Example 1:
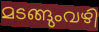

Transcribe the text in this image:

മടങ്ങുംവഴി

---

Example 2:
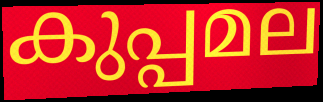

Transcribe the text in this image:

കുപ്പമല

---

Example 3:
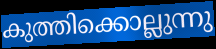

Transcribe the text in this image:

കുത്തിക്കൊല്ലുന്നു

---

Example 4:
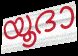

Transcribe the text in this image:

യൂദാ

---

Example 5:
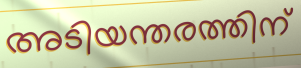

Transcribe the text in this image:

അടിയന്തരത്തിന്